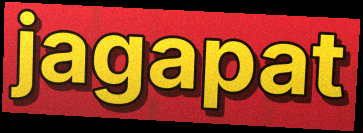
jagapat